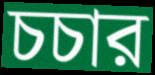
চচার